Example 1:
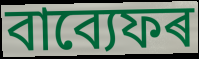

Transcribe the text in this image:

বাব্যেফৰ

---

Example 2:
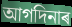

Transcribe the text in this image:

আগদিনাৰ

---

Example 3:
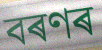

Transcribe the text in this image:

বৰণৰ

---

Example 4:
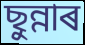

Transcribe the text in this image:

ছুন্নাৰ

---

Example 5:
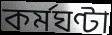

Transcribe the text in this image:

কৰ্মঘণ্টা